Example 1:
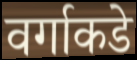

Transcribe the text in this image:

वर्गाकडे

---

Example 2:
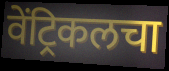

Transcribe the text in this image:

वेंट्रिकलचा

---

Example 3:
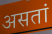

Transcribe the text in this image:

असतां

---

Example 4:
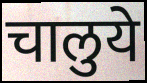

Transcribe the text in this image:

चालुये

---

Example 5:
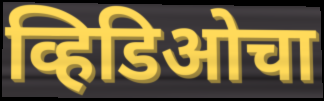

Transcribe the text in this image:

व्हिडिओचा